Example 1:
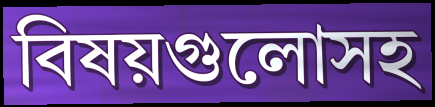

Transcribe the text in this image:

বিষয়গুলোসহ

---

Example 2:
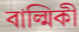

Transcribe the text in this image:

বাল্মিকী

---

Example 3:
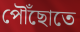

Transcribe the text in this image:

পৌঁছোতে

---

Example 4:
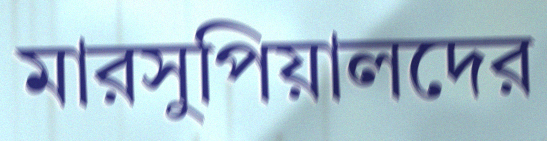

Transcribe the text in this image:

মারসুপিয়ালদের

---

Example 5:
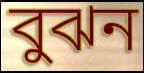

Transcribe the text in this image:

বুঝন